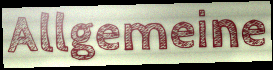
Allgemeine